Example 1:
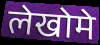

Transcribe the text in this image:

लेखोमे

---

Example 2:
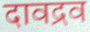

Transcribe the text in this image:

दावद्रव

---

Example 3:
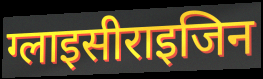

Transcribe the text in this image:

ग्लाइसीराइजिन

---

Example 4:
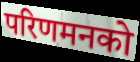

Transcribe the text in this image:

परिणमनको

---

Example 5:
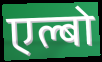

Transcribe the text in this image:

एल्बो